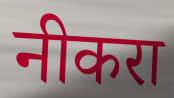
नीकरा